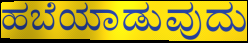
ಹಬೆಯಾಡುವುದು